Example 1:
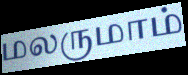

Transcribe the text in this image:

மலருமாம்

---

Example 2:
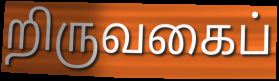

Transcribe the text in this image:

றிருவகைப்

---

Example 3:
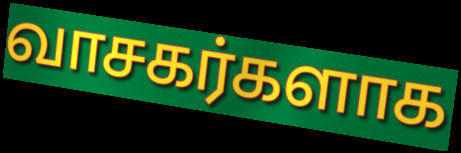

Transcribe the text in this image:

வாசகர்களாக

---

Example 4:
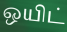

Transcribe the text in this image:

ஒயிட்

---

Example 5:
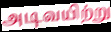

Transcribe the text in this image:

அடிவயிற்று